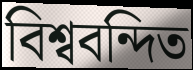
বিশ্ববন্দিত